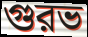
গুরভ